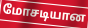
மோசடியான